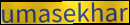
umasekhar